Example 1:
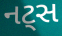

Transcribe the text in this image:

નટ્સ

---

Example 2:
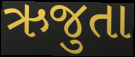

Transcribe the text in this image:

ઋજુતા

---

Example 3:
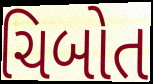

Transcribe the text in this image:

ચિબોત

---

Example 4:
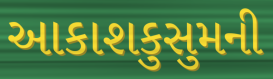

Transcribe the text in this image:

આકાશકુસુમની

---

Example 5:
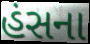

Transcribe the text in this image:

હંસના